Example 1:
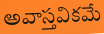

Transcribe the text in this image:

అవాస్తవికమే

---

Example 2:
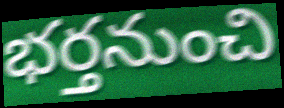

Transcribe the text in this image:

భర్తనుంచి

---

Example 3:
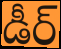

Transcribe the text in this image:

డీర్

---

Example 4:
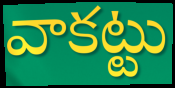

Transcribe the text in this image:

వాకట్టు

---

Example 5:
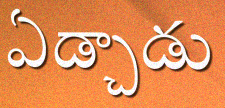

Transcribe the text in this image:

ఏడ్చాడు